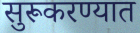
सुरूकरण्यात